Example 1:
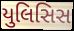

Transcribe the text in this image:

યુલિસિસ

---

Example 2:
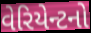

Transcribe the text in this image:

વેરિયેન્ટનો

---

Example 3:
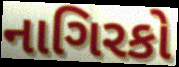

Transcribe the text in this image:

નાગિરકો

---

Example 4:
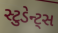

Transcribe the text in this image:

સ્ટુડેન્ટ્સ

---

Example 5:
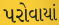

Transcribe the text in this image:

પરોવાયાં